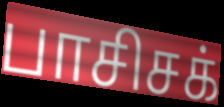
பாசிசக்